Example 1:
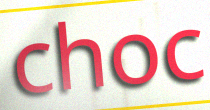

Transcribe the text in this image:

choc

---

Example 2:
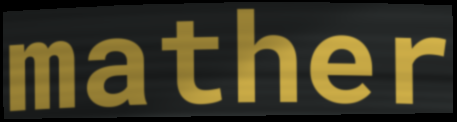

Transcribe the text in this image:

mather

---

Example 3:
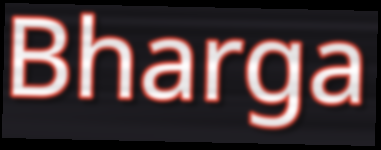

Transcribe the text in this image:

Bharga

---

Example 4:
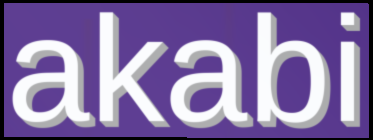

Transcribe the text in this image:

akabi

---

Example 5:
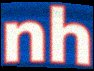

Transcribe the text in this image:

nh